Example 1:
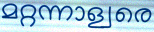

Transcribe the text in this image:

മറ്റന്നാള്വരെ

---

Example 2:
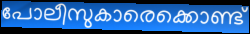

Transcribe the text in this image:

പോലീസുകാരെക്കൊണ്ട്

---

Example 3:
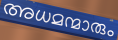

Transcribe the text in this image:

അധമന്മാരും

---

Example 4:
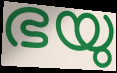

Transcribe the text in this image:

ഭയു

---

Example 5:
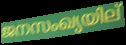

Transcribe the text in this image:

ജനസംഖ്യയില്